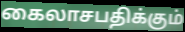
கைலாசபதிக்கும்